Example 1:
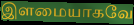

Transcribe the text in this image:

இளமையாகவே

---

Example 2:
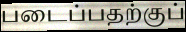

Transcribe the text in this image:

படைப்பதற்குப்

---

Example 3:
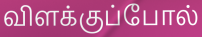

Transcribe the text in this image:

விளக்குப்போல்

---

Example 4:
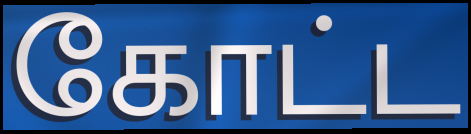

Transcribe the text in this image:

கோட்ட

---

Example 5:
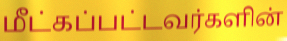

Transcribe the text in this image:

மீட்கப்பட்டவர்களின்